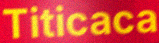
Titicaca